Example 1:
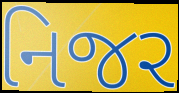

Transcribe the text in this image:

નિજર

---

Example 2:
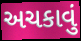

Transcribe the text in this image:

અચકાવું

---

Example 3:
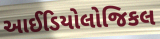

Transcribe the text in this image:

આઈડિયોલોજિકલ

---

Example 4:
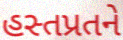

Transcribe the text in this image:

હસ્તપ્રતને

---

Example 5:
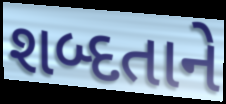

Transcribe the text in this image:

શબ્દતાને